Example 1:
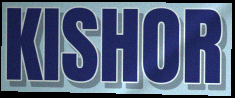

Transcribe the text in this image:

KISHOR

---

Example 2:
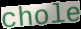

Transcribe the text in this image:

chole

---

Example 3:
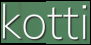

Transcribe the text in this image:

kotti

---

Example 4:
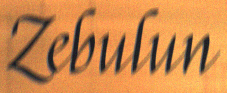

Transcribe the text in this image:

Zebulun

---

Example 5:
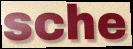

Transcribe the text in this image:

sche